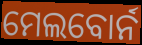
ମେଲବୋର୍ନ